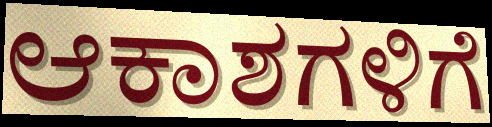
ಆಕಾಶಗಳಿಗೆ